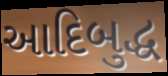
આદિબુદ્ધ